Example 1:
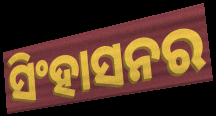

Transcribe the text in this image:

ସିଂହାସନର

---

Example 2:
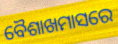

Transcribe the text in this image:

ବୈଶାଖମାସରେ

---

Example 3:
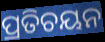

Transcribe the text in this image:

ପ୍ରତିଚୟନ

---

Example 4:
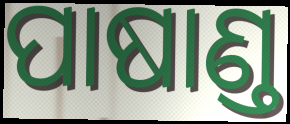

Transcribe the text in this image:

ପାଷାଣ୍ଡ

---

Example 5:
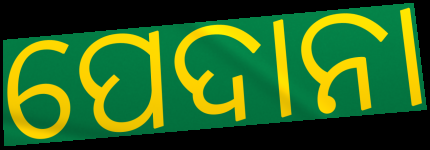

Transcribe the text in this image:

ପେଦାନା